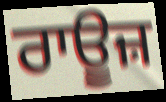
ਰਾਊਜ਼